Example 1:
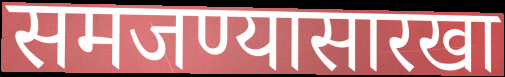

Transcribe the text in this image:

समजण्यासारखा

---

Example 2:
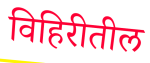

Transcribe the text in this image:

विहिरीतील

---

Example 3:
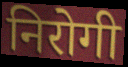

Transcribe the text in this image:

निरोगी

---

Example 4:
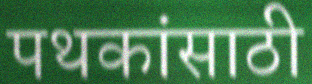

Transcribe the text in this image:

पथकांसाठी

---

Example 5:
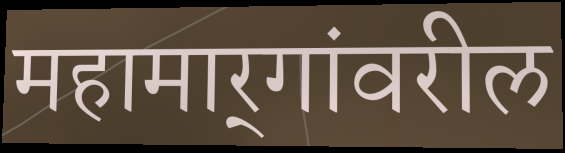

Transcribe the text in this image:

महामार्गांवरील